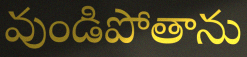
వుండిపోతాను